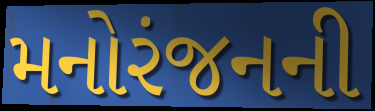
મનોરંજનની